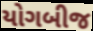
યોગબીજ